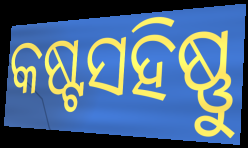
କଷ୍ଟସହିଷ୍ଣୁ